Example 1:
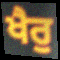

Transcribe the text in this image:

ਖੈਰੁ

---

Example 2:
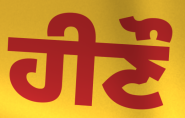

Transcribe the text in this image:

ਹੀਣੌ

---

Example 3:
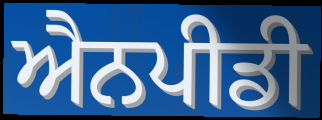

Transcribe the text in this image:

ਐਨਪੀਡੀ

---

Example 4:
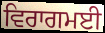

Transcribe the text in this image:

ਵਿਰਾਗਮਈ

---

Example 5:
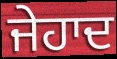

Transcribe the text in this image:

ਜੇਹਾਦ